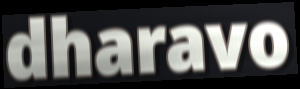
dharavo